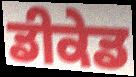
ਡੀਕੇਡ